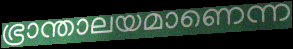
ഭ്രാന്താലയമാണെന്ന